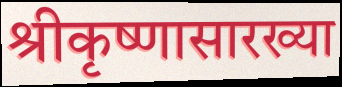
श्रीकृष्णासारख्या